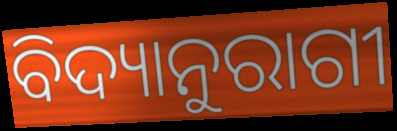
ବିଦ୍ୟାନୁରାଗୀ